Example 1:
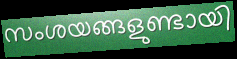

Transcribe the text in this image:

സംശയങ്ങളുണ്ടായി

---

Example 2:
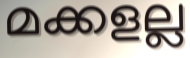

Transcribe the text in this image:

മക്കളല്ല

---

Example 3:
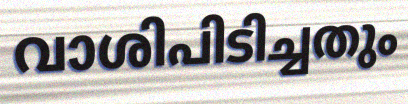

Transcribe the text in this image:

വാശിപിടിച്ചതും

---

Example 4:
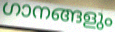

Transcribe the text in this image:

ഗാനങ്ങളും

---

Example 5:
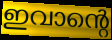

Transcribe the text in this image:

ഇവാന്റെ